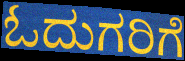
ಓದುಗರಿಗೆ